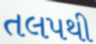
તલપથી